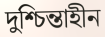
দুশ্চিন্তাহীন